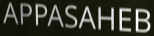
APPASAHEB